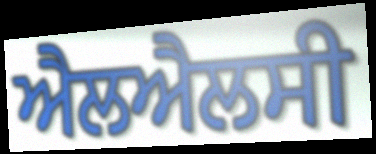
ਐਲਐਲਸੀ